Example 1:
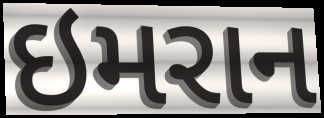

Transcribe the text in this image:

ઇમરાન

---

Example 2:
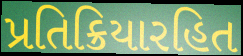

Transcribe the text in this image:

પ્રતિક્રિયારહિત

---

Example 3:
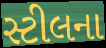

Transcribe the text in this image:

સ્ટીલના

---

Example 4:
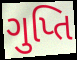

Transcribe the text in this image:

ગુપ્તિ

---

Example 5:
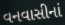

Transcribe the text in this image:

વનવાસીનાં